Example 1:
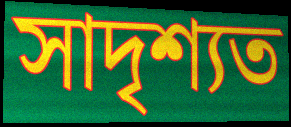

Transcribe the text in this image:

সাদৃশ্যত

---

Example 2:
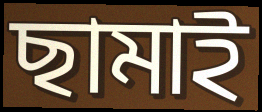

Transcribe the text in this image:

ছামাই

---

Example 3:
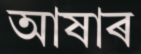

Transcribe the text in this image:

আষাৰ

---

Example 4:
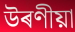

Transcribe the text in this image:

উৰণীয়া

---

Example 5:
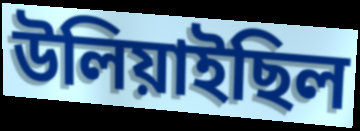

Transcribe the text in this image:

উলিয়াইছিল